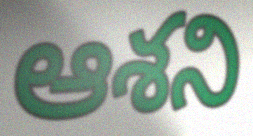
ఆశని